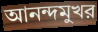
আনন্দমুখর